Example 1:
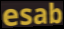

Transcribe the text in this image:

esab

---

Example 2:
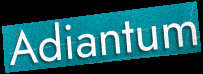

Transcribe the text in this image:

Adiantum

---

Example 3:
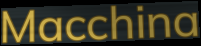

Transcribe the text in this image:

Macchina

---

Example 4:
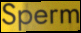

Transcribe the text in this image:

Sperm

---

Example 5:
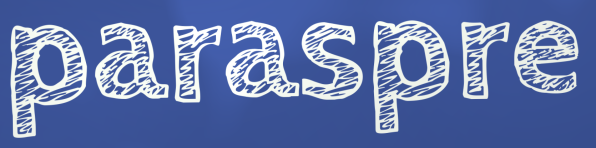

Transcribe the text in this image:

paraspre